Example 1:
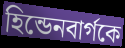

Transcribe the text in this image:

হিন্ডেনবার্গকে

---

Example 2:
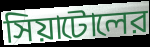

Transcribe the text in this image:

সিয়াটোলের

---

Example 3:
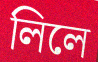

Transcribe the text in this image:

লিলে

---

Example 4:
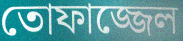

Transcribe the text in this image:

তোফাজ্জেল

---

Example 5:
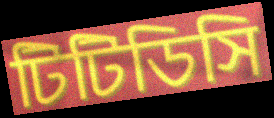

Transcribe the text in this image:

টিটিডিসি